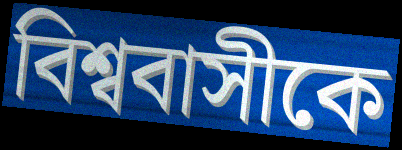
বিশ্ববাসীকে